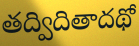
తద్విదితాదథో